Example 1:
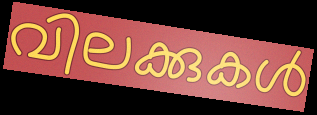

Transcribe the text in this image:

വിലക്കുകൾ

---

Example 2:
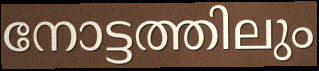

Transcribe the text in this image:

നോട്ടത്തിലും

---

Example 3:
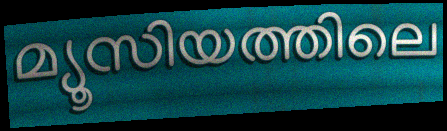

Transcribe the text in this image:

മ്യൂസിയത്തിലെ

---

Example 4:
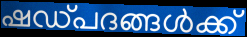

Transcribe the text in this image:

ഷഡ്പദങ്ങൾക്ക്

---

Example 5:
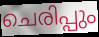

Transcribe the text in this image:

ചെരിപ്പും